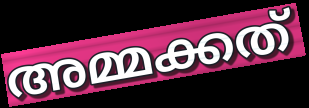
അമ്മക്കത്